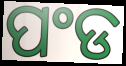
ପଂଡ